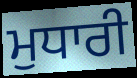
ਮੁਧਾਰੀ